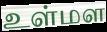
உள்மள